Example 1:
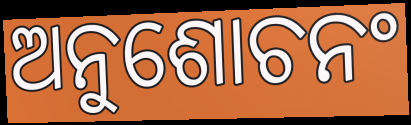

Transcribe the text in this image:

ଅନୁଶୋଚନଂ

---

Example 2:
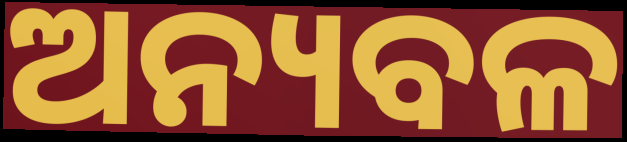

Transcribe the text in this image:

ଅନ୍ୟବଳ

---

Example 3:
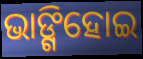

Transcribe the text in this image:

ଭାଙ୍ଗିହୋଇ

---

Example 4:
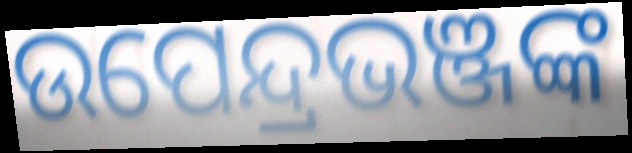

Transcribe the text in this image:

ଉପେନ୍ଦ୍ରଭଞ୍ଜଙ୍କ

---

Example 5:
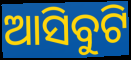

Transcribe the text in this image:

ଆସିବୁଟି